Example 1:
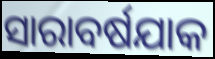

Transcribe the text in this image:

ସାରାବର୍ଷଯାକ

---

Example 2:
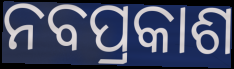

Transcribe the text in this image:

ନବପ୍ରକାଶ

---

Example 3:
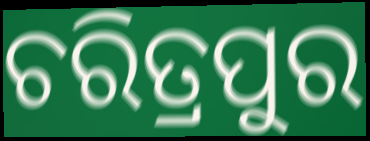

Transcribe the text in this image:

ଚରିତ୍ରପୁର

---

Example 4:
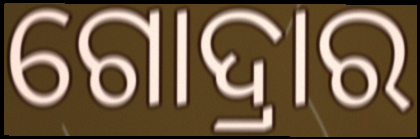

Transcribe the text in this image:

ଗୋଦ୍ରାର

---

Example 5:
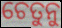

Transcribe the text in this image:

ଚେତୁନୁ